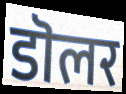
डॊलर